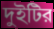
দুইটির